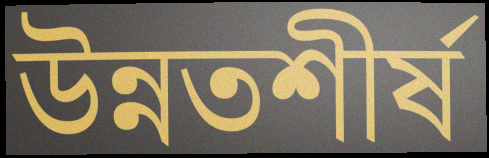
উন্নতশীর্ষ